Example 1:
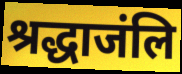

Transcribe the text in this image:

श्रद्धाजंलि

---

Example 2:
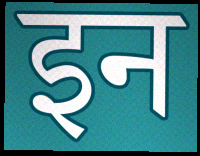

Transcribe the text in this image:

इन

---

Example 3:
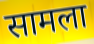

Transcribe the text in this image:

सामला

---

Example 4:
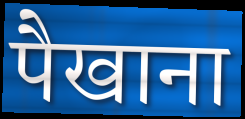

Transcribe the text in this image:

पैखाना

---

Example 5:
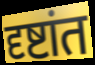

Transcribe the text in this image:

दृष्टांत